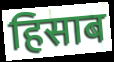
हिसाब